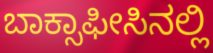
ಬಾಕ್ಸಾಫೀಸಿನಲ್ಲಿ